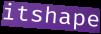
itshape